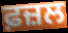
ਫ਼ਜ਼ਲ